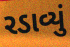
રડાવ્યું